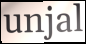
unjal